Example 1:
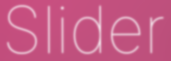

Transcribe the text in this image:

Slider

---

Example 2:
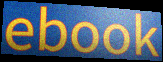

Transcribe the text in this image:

ebook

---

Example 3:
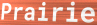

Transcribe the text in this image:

Prairie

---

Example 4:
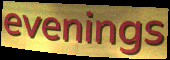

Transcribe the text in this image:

evenings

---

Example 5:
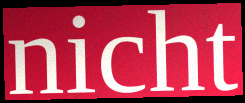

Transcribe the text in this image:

nicht